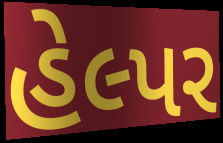
હેલ્પર